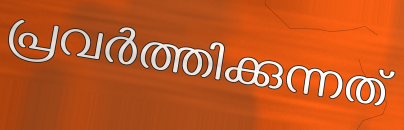
പ്രവർത്തിക്കുന്നത്